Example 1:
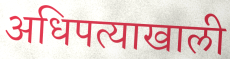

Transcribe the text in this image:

अधिपत्याखाली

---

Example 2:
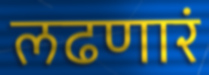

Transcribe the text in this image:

लढणारं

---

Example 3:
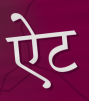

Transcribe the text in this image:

ऐट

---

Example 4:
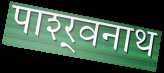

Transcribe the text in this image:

पाश्र्वनाथ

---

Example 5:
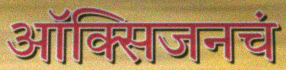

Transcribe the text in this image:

ऑक्सिजनचं